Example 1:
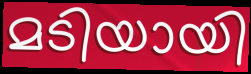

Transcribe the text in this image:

മടിയായി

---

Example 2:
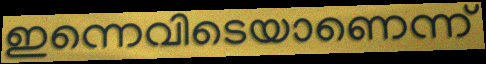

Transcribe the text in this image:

ഇന്നെവിടെയാണെന്ന്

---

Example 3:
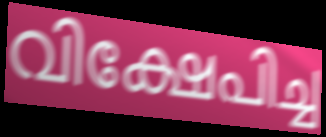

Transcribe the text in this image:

വിക്ഷേപിച്ച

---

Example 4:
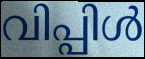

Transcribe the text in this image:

വിപ്പിൾ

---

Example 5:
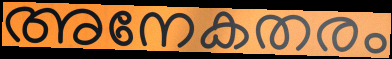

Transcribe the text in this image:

അനേകതരം